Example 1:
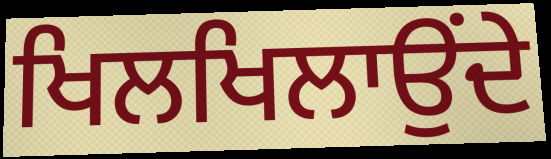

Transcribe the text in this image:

ਖਿਲਖਿਲਾਉਂਦੇ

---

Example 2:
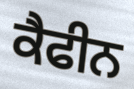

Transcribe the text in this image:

ਕੈਫੀਨ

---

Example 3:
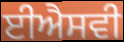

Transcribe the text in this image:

ਈਐਸਵੀ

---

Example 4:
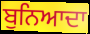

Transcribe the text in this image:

ਬੁਨਿਆਦਾ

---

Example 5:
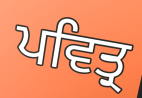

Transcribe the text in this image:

ਪਵਿਤ੍ਰ